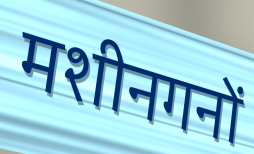
मशीनगनों